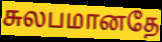
சுலபமானதே